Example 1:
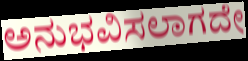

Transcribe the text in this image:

ಅನುಭವಿಸಲಾಗದೇ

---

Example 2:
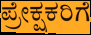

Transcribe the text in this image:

ಪ್ರೇಕ್ಷಕರಿಗೆ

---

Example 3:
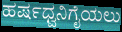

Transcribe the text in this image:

ಹರ್ಷಧ್ವನಿಗೈಯಲು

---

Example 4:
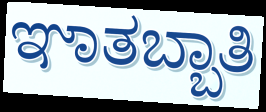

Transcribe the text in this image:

ಞಾತಬ್ಬಾತಿ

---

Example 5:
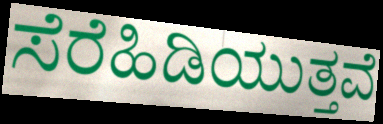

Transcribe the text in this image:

ಸೆರೆಹಿಡಿಯುತ್ತವೆ